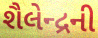
શૈલેન્દ્રની